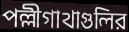
পল্লীগাথাগুলির